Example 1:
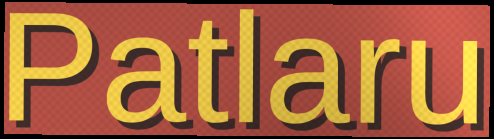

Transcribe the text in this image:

Patlaru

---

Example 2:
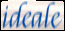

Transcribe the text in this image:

ideale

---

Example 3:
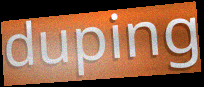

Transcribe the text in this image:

duping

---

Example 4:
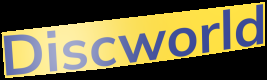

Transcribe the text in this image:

Discworld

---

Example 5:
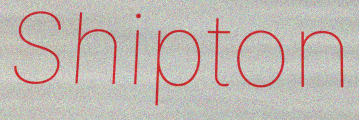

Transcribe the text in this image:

Shipton